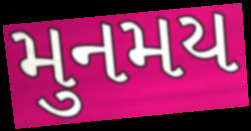
મુનમય